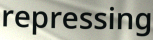
repressing